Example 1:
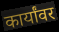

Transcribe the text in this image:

कार्यांवर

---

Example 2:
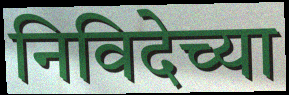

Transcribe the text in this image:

निविदेच्या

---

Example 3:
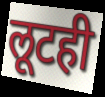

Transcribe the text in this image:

लूटही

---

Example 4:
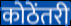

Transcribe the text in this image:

कोठेंतरी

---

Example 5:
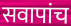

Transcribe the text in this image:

सवापांच